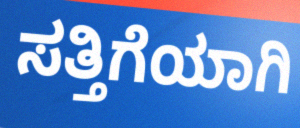
ಸತ್ತಿಗೆಯಾಗಿ